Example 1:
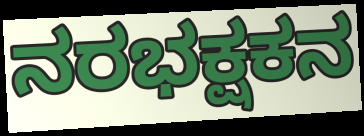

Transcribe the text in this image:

ನರಭಕ್ಷಕನ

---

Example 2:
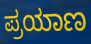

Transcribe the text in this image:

ಪ್ರಯಾಣ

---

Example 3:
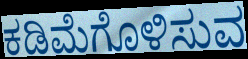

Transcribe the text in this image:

ಕಡಿಮೆಗೊಳಿಸುವ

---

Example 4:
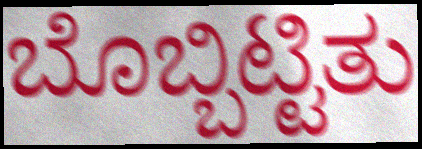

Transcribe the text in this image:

ಬೊಬ್ಬಿಟ್ಟಿತು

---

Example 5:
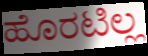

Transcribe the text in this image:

ಹೊರಟಿಲ್ಲ